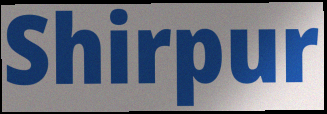
Shirpur